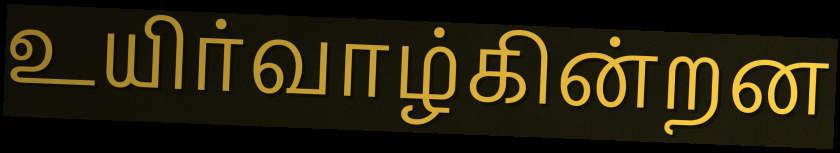
உயிர்வாழ்கின்றன